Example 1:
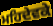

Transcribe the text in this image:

ਮਹਿਦੇਵਕੇ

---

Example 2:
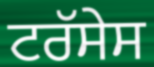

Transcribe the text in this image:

ਟਰੱਸੇਸ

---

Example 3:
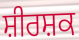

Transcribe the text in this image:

ਸ਼ੀਰਸ਼ਕ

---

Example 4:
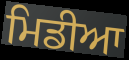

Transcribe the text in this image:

ਮਿਡੀਆ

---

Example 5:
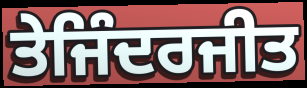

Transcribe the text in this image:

ਤੇਜਿੰਦਰਜੀਤ